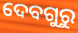
ଦେବଗୁରୁ